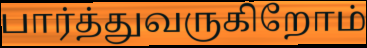
பார்த்துவருகிறோம்